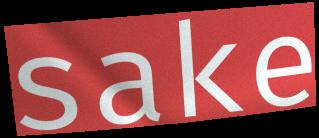
sake